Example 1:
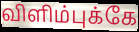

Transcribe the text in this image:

விளிம்புக்கே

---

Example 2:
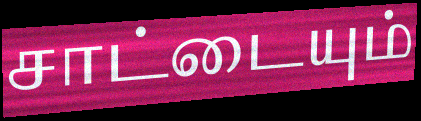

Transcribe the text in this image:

சாட்டையும்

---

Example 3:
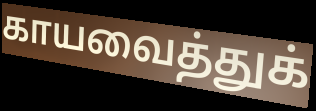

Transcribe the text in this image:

காயவைத்துக்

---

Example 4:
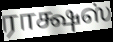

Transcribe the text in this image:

ராக்ஷஸ்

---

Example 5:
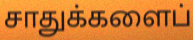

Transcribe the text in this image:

சாதுக்களைப்